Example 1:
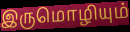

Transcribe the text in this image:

இருமொழியும்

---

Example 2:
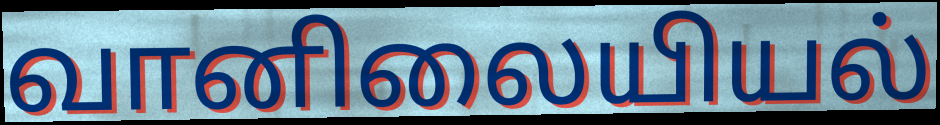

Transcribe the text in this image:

வானிலையியல்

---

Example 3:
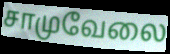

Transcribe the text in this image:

சாமுவேலை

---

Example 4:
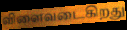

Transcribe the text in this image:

விளைவடைகிறது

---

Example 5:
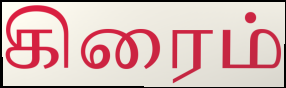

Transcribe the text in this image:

கிரைம்